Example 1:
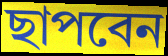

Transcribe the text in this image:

ছাপবেন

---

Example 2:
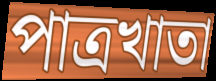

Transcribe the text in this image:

পাত্রখাতা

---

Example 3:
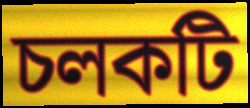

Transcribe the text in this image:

চলকটি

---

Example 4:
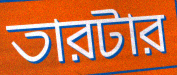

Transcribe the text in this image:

তারটার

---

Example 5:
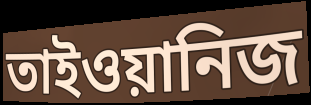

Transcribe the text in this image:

তাইওয়ানিজ